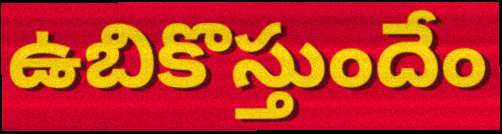
ఉబికొస్తుందేం